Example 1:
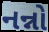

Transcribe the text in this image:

નન્નો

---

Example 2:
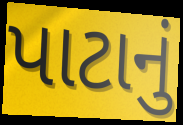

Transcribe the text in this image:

પાટાનું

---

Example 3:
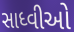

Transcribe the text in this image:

સાધ્વીઓ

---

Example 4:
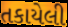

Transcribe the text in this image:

તકાયેલી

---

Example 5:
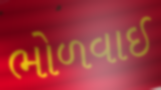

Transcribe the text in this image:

ભોળવાઈ